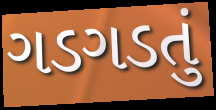
ગડગડતું